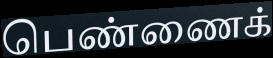
பெண்ணைக்